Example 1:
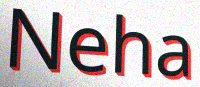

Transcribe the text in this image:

Neha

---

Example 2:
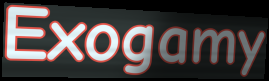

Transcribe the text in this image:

Exogamy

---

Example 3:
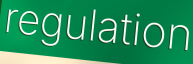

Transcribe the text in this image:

regulation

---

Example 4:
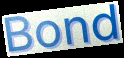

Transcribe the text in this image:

Bond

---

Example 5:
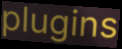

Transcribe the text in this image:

plugins